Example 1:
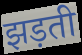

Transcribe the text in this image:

झड़ती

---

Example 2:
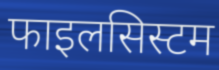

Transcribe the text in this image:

फाइलसिस्टम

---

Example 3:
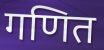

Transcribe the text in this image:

गणित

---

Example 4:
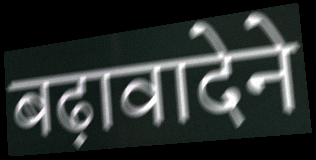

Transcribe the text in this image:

बढ़ावादेने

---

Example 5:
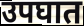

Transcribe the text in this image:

उपघात